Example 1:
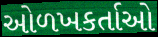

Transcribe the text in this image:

ઓળખકર્તાઓ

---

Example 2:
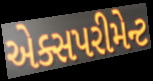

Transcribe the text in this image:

એક્સપરીમેન્ટ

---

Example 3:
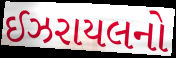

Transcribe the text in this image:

ઈઝરાયલનો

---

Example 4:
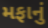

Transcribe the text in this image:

મફાનું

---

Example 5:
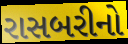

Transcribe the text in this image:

રાસબરીનો